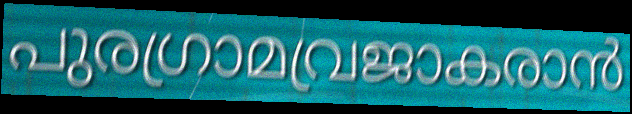
പുരഗ്രാമവ്രജാകരാൻ